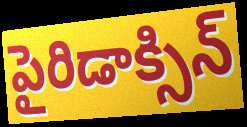
పైరిడాక్సిన్